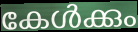
കേൾക്കും